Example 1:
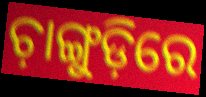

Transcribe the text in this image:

ଚ଼ାଙ୍ଗୁଡ଼ିରେ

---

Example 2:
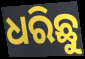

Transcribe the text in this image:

ଧରିଛୁ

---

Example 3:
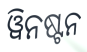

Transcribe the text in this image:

ୱିନଷ୍ଟନ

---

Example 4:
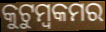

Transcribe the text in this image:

କୁଟୁମ୍ବକମର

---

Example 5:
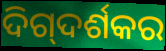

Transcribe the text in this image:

ଦିଗ୍‍ଦର୍ଶକର